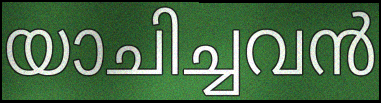
യാചിച്ചവൻ